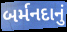
બર્મનદાનું